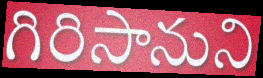
గిరిసానుని